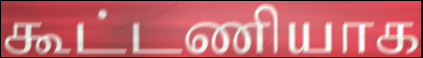
கூட்டணியாக